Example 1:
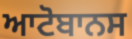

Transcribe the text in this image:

ਆਟੋਬਾਨਸ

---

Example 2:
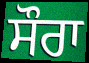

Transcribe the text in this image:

ਸੌਰਾ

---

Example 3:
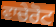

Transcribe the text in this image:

ਵਾਚੇਰੋਟ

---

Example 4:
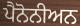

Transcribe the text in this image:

ਪੈਨੋਨੀਅਨ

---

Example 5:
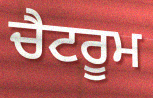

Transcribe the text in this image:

ਚੈਟਰੂਮ